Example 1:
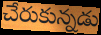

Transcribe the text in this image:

చేరుకున్నడు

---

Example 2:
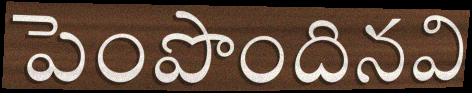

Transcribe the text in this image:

పెంపొందినవి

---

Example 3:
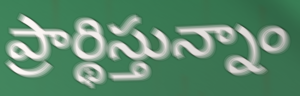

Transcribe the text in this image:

ప్రార్థిస్తున్నాం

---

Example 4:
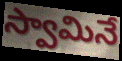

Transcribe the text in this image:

స్వామినే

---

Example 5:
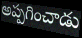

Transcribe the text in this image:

అప్పగించాడు